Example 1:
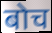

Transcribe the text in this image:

बोच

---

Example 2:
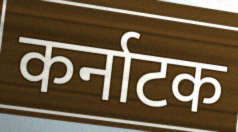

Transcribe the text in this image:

कर्नाटक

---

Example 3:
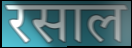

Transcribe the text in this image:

रसाल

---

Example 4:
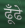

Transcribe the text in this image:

ढूँढे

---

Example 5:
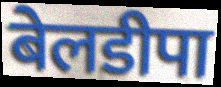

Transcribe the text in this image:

बेलडीपा